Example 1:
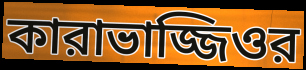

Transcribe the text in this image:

কারাভাজ্জিওর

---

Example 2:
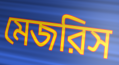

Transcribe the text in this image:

মেজরিস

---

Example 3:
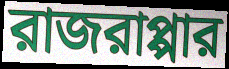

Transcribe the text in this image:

রাজরাপ্পার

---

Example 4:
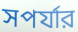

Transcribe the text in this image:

সপর্যার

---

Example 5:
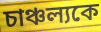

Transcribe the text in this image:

চাঞ্চল্যকে